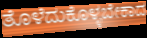
ತೊಳೆದುಕೊಳ್ಳಬೇಕಾದ